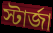
স্টার্জা